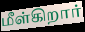
மீள்கிறார்